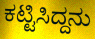
ಕಟ್ಟಿಸಿದ್ದನು